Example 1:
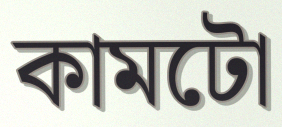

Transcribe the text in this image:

কামটো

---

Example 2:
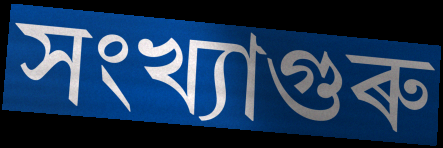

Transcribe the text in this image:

সংখ্যাগুৰু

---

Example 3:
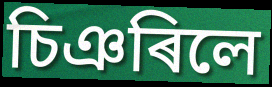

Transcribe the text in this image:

চিঞৰিলে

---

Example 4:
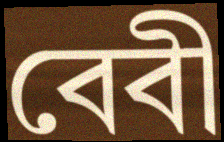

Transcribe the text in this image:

বেবী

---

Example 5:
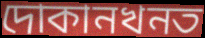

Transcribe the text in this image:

দোকানখনত